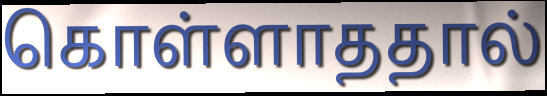
கொள்ளாததால்